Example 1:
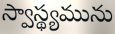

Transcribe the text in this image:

స్వాస్థ్యమును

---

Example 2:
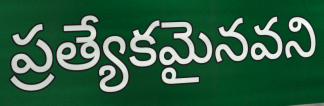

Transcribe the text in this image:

ప్రత్యేకమైనవని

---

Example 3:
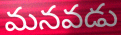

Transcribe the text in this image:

మనవడు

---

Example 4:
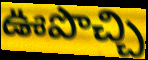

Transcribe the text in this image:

ఊపొచ్చి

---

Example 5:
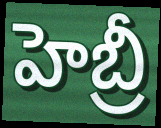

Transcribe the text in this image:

హెబ్రీ